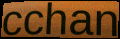
cchan